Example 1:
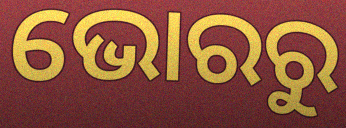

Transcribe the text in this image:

ଭୋରରୁ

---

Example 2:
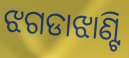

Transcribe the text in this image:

ଝଗଡାଝାଣ୍ଟି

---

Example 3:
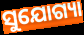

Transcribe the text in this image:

ସୁଯୋଗ୍ୟା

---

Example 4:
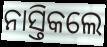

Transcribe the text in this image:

ନାସ୍ତିକଲେ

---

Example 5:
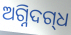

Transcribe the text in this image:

ଅଗ୍ନିଦଗ୍‌ଧ